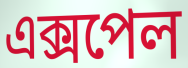
এক্সপেল